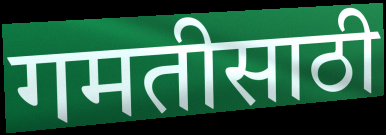
गमतीसाठी